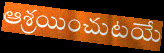
ఆశ్రయించుటయే